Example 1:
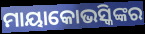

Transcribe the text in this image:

ମାୟାକୋଭସ୍କିଙ୍କର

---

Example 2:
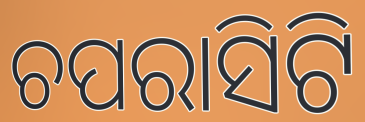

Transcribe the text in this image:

ଚପରାସିଟି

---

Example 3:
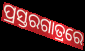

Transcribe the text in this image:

ପ୍ରସ୍ତରଗାତ୍ରରେ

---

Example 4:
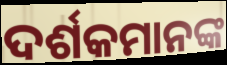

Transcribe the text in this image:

ଦର୍ଶକମାନଙ୍କ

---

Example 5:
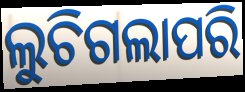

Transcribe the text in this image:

ଲୁଚିଗଲାପରି